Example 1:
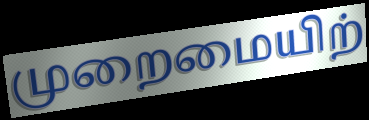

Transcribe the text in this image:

முறைமையிற்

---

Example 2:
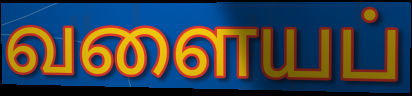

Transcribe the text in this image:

வளையப்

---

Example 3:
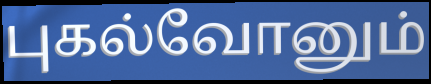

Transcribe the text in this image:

புகல்வோனும்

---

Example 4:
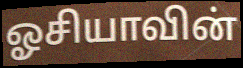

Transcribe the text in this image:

ஓசியாவின்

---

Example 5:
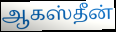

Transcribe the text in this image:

ஆகஸ்தீன்